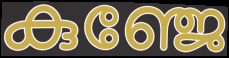
കുഞ്ജേ